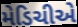
મેડિચીએ